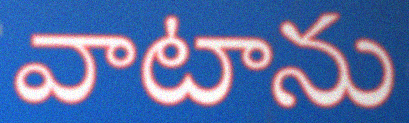
వాటాను